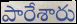
పారేశారు